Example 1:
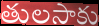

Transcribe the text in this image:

తులసాకు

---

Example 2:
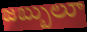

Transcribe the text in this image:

జబ్బులూ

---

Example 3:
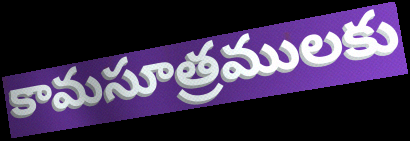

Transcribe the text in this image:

కామసూత్రములకు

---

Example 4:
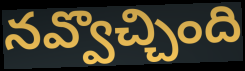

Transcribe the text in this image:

నవ్వొచ్చింది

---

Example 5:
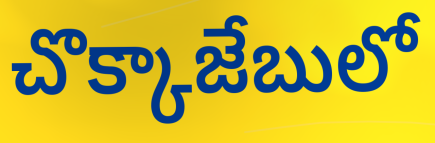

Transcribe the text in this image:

చొక్కాజేబులో